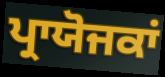
ਪ੍ਰਾਯੋਜਕਾਂ